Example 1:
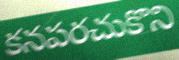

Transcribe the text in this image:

కనపరచుకొని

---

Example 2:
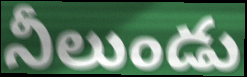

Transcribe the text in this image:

నీలుండు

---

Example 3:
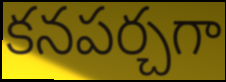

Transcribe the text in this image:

కనపర్చగా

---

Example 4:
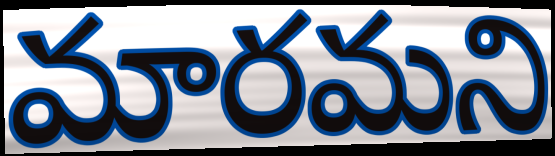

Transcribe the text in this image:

మారమని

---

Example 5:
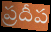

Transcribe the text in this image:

ప్రదీప